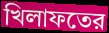
খিলাফতের